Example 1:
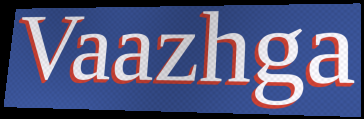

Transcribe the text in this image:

Vaazhga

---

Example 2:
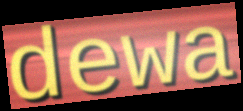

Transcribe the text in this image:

dewa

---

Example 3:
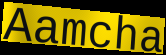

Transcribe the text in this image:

Aamcha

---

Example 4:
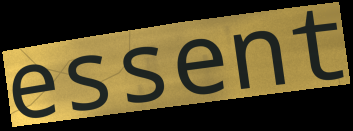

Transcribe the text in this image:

essent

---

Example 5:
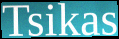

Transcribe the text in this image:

Tsikas